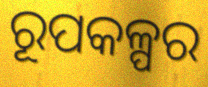
ରୂପକଳ୍ପର